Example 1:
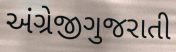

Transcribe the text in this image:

અંગ્રેજીગુજરાતી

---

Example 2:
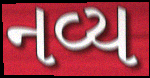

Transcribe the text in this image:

નવ્ય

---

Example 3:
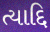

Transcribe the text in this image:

ત્યાદ્દિ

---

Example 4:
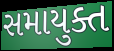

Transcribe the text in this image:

સમાયુક્ત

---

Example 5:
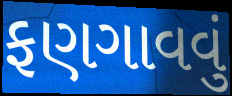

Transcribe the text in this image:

ફણગાવવું